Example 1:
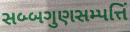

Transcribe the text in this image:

સબ્બગુણસમ્પત્તિં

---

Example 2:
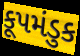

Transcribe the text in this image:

કૂપમંડુક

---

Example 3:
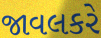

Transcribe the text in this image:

જાવલકરે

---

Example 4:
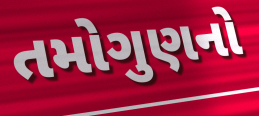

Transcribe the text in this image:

તમોગુણનો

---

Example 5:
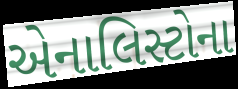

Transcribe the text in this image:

એનાલિસ્ટોના